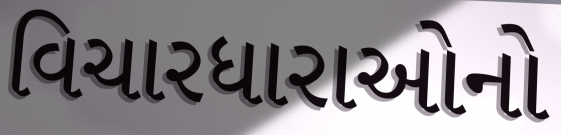
વિચારધારાઓનો